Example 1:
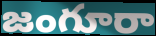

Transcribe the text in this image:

జంగూరా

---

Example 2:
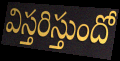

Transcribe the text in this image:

విస్తరిస్తుందో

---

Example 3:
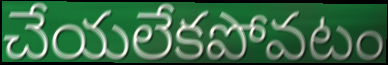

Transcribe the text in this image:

చేయలేకపోవటం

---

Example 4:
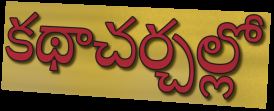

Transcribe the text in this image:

కథాచర్చల్లో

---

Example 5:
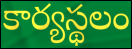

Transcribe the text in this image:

కార్యస్థలం